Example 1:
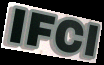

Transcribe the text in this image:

IFCI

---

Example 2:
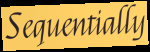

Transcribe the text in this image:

Sequentially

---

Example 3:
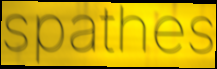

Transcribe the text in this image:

spathes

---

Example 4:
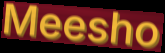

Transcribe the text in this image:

Meesho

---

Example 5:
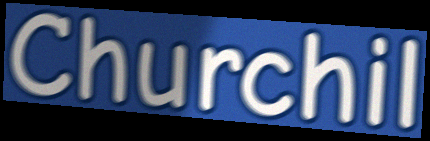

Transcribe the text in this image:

Churchil